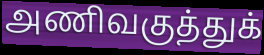
அணிவகுத்துக்